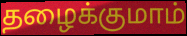
தழைக்குமாம்